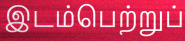
இடம்பெற்றுப்